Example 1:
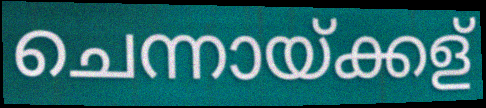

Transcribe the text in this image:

ചെന്നായ്ക്കള്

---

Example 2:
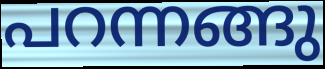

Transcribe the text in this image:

പറന്നങ്ങു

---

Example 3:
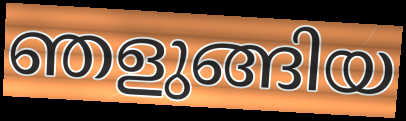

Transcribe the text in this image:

ഞളുങ്ങിയ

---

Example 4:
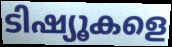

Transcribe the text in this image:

ടിഷ്യൂകളെ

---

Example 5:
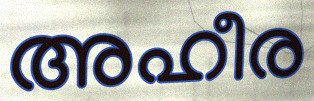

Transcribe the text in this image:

അഹീര